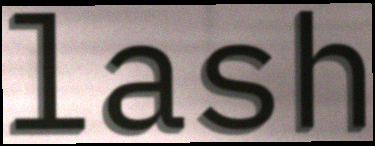
lash